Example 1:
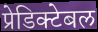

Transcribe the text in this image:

प्रेडिक्टेबल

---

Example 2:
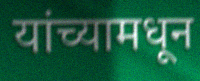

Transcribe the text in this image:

यांच्यामधून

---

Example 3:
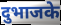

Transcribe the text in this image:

दुभाजके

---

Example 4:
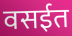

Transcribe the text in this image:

वसईत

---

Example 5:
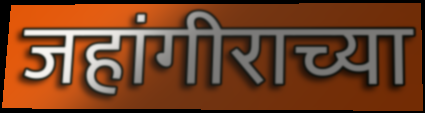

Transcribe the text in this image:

जहांगीराच्या